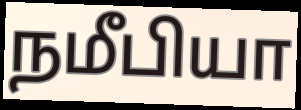
நமீபியா